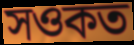
সওকত